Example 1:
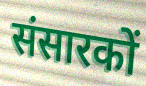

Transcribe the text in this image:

संसारकों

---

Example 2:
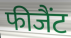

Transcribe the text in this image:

फीजैंट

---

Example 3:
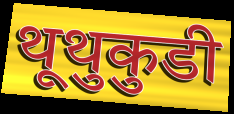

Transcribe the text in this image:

थूथुकुडी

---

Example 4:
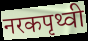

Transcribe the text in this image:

नरकपृथ्वी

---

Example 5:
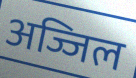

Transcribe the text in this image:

अज्जिल